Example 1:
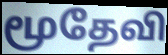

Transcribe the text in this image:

மூதேவி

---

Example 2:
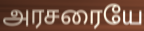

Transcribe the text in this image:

அரசரையே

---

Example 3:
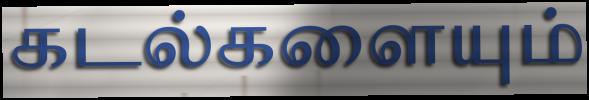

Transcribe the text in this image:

கடல்களையும்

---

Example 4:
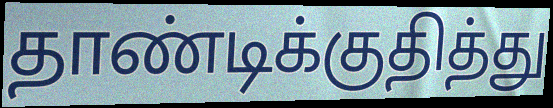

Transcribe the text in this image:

தாண்டிக்குதித்து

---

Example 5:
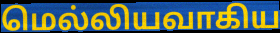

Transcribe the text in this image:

மெல்லியவாகிய